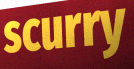
scurry